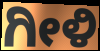
ಗೀಳಿ